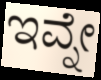
ಇವ್ನೇ